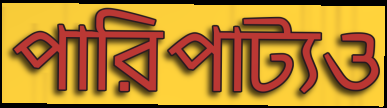
পারিপাট্যও